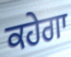
ਕਹੇਗਾ